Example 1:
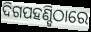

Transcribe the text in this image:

ଦିଗପହଣ୍ଡିଠାରେ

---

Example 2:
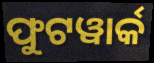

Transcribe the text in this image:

ଫୁଟୱାର୍କ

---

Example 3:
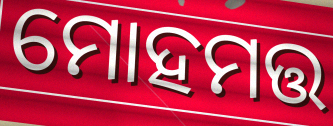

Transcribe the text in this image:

ମୋହମତ୍ତ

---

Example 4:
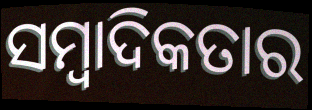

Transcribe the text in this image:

ସମ୍ୱାଦିକତାର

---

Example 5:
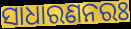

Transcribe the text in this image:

ସାଧାରଣନରଃ